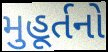
મુહૂર્તનો